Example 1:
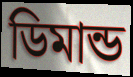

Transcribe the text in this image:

ডিমান্ড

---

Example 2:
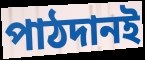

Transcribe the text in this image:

পাঠদানই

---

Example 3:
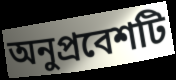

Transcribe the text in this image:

অনুপ্রবেশটি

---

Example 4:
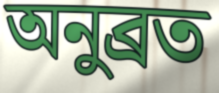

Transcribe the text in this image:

অনুব্রত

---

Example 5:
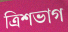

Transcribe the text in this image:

ত্রিশভাগ